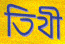
তিথী